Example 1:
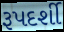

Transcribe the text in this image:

રૂપદર્શી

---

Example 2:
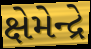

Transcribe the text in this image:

ક્ષેમેન્દ્રે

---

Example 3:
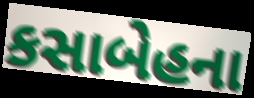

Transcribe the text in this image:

કસાબેહના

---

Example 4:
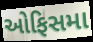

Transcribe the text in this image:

ઓફિસમા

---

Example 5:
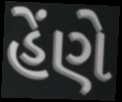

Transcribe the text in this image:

હેંણે